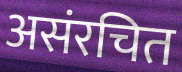
असंरचित